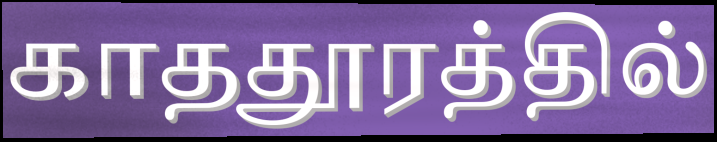
காததூரத்தில்